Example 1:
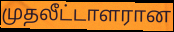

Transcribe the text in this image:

முதலீட்டாளரான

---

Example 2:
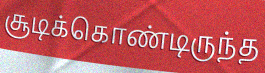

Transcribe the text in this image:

சூடிக்கொண்டிருந்த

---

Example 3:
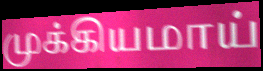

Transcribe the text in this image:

முக்கியமாய்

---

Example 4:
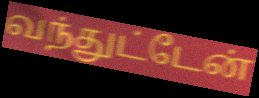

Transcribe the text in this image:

வந்துட்டேன்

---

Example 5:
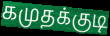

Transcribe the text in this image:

கமுதக்குடி